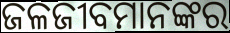
ଜଳଜୀବମାନଙ୍କର